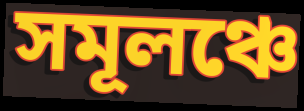
সমূলঞ্চে